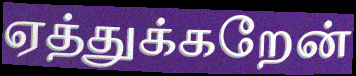
ஏத்துக்கறேன்